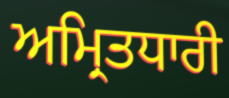
ਅਮ੍ਰਿਤਧਾਰੀ